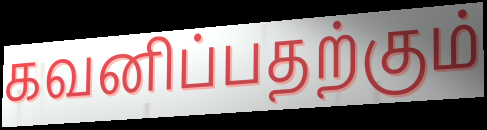
கவனிப்பதற்கும்